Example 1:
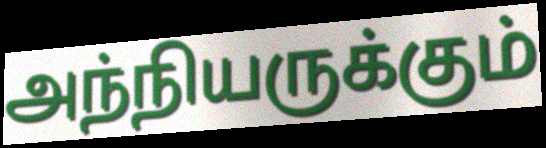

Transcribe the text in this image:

அந்நியருக்கும்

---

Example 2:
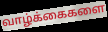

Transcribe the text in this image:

வாழ்க்கைகளை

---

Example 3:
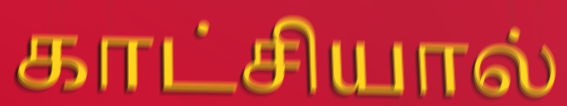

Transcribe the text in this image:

காட்சியால்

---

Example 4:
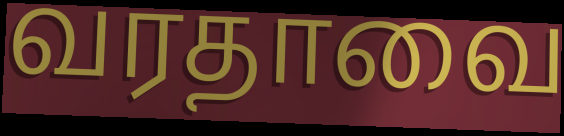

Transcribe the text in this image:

வரதாவை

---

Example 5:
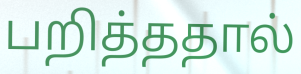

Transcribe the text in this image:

பறித்ததால்